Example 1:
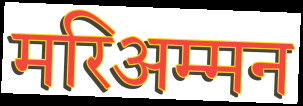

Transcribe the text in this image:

मरिअम्मन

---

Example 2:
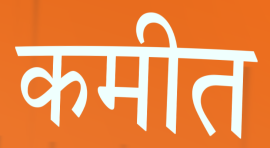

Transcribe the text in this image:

कमीत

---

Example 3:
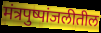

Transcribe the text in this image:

मंत्रपुष्पांजलीतील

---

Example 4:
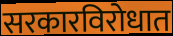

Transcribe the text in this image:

सरकारविरोधात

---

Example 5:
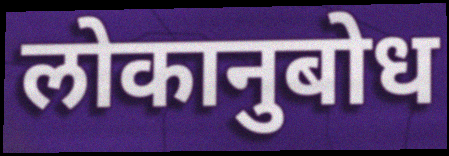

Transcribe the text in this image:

लोकानुबोध